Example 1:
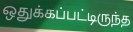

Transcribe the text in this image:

ஒதுக்கப்பட்டிருந்த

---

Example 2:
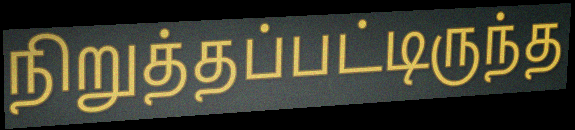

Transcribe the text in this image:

நிறுத்தப்பட்டிருந்த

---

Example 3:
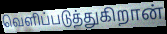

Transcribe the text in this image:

வெளிப்படுத்துகிறான்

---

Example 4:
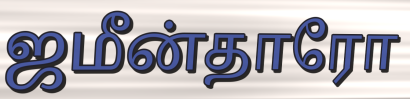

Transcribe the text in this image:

ஜமீன்தாரோ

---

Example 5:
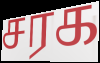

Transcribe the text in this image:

சரக